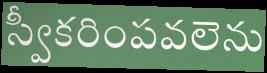
స్వీకరింపవలెను